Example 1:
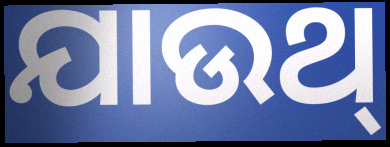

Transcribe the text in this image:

ଯାଉଥ୍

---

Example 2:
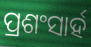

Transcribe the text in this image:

ପ୍ରଶଂସାର୍ହ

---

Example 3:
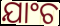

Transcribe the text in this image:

ଯାଂଚ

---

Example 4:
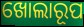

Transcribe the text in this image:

ଖୋଲାରୂପ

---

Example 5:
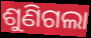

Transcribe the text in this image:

ଶୁଣିଗଲା